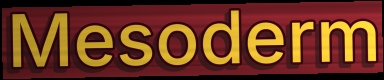
Mesoderm